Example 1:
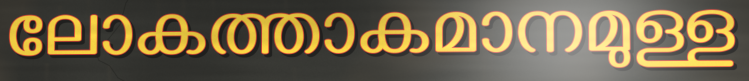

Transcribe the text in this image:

ലോകത്താകമാനമുള്ള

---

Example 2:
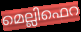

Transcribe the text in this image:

മെല്ലിഫെറ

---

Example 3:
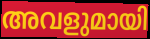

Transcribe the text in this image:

അവളുമായി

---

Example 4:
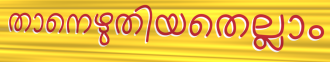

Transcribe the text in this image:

താനെഴുതിയതെല്ലാം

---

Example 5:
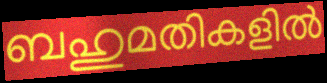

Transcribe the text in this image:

ബഹുമതികളിൽ